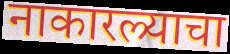
नाकारल्याचा